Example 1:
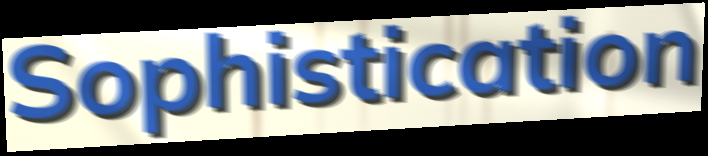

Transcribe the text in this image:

Sophistication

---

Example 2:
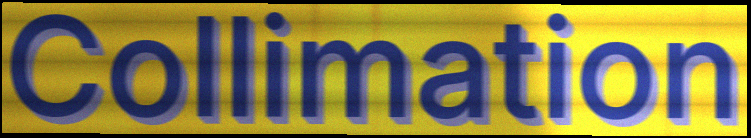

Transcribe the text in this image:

Collimation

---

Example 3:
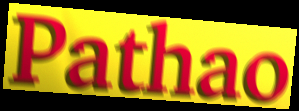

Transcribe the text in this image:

Pathao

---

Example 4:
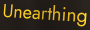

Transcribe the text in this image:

Unearthing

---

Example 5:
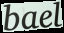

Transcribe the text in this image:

bael